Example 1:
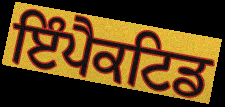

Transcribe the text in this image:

ਇੰਪੈਕਟਿਡ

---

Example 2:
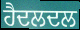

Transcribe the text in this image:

ਹੈਦਲਦਲ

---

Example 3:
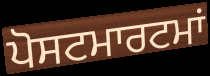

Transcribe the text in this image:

ਪੋਸਟਮਾਰਟਮਾਂ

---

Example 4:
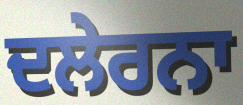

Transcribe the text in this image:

ਦਲੇਰਨਾ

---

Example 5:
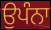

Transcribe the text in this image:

ਉਪੰਨਾ